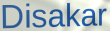
Disakar